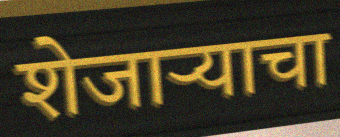
शेजार्‍याचा